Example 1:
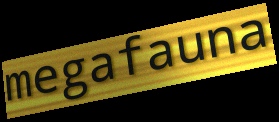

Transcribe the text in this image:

megafauna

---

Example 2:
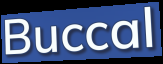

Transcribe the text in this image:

Buccal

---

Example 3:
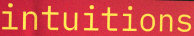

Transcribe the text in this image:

intuitions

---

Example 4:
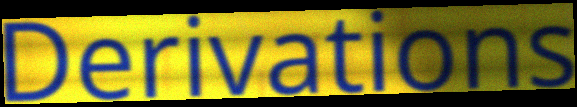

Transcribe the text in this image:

Derivations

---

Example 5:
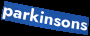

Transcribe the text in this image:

parkinsons